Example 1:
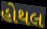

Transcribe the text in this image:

હોથલ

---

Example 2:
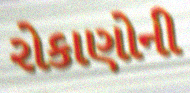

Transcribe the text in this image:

રોકાણોની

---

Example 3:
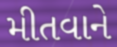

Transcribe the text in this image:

મીતવાને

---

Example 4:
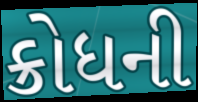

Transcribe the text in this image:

ક્રોધની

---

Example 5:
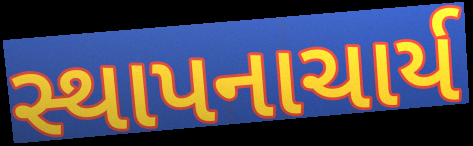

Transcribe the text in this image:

સ્થાપનાચાર્ય